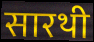
सारथी